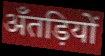
अँतड़ियों